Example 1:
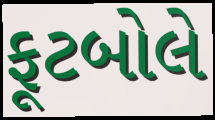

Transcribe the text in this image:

ફૂટબોલે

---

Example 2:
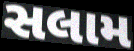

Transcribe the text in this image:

સલામ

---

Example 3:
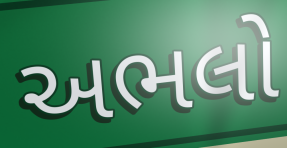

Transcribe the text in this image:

અભલો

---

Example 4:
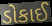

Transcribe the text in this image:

ડોકાઈ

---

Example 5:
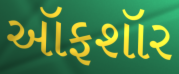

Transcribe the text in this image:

ઑફશૉર